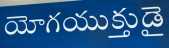
యోగయుక్తుడై